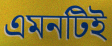
এমনটিই